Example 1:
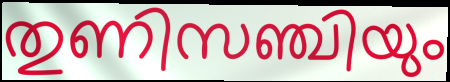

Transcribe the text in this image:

തുണിസഞ്ചിയും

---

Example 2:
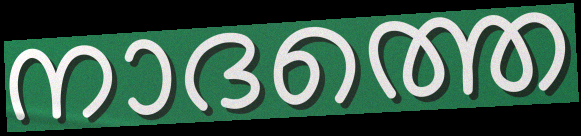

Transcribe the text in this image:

നാദത്തെ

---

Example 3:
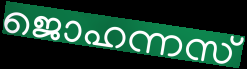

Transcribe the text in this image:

ജൊഹന്നസ്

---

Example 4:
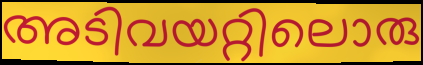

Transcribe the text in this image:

അടിവയറ്റിലൊരു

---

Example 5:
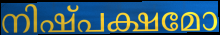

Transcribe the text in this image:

നിഷ്പക്ഷമോ